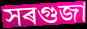
সৰগুজা